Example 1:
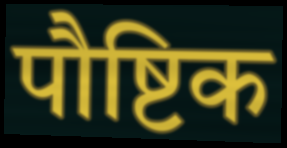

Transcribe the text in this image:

पौष्टिक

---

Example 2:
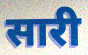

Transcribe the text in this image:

सारी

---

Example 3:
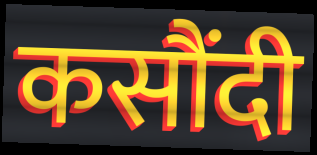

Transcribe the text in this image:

कसौंदी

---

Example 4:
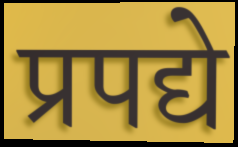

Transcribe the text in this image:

प्रपद्ये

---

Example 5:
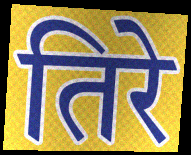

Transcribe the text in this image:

तिरे